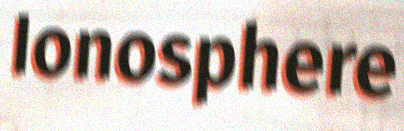
Ionosphere